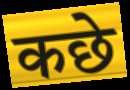
कछे